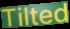
Tilted